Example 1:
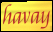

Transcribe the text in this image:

havay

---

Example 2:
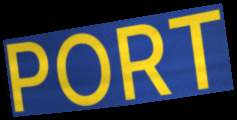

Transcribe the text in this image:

PORT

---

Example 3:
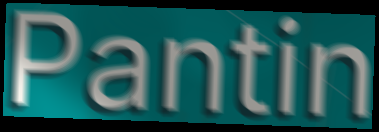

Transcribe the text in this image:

Pantin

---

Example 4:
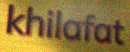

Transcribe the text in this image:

khilafat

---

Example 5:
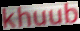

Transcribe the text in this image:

khuub